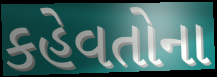
કહેવતોના